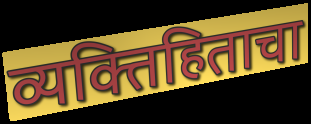
व्यक्तिहिताचा